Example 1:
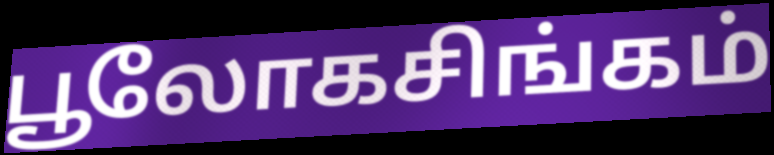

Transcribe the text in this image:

பூலோகசிங்கம்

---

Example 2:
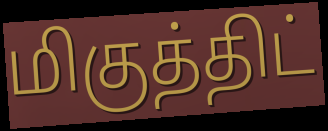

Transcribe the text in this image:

மிகுத்திட்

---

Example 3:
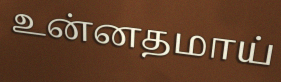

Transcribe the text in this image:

உன்னதமாய்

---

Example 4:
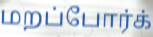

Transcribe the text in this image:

மறப்போர்க்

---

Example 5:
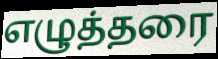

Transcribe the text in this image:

எழுத்தரை